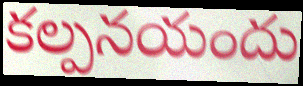
కల్పనయందు